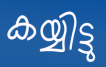
കയ്യിട്ടു